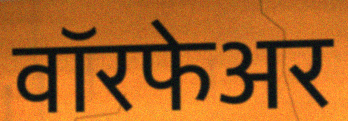
वॉरफेअर